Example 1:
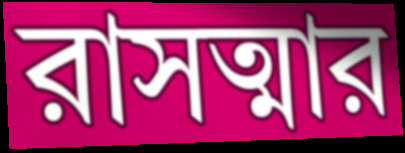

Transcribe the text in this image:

রাসত্মার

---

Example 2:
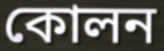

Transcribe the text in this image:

কোলন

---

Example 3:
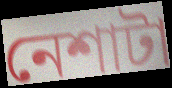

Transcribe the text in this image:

নেশাটা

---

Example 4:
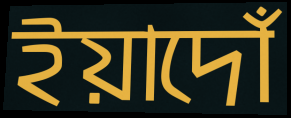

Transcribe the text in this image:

ইয়াদোঁ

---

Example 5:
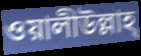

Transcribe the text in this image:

ওয়ালীউল্লাহ্